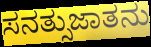
ಸನತ್ಸುಜಾತನು